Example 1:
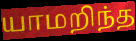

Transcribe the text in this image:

யாமறிந்த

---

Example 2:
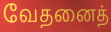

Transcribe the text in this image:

வேதனைத்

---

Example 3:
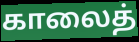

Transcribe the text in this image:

காலைத்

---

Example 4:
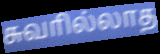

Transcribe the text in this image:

சுவரில்லாத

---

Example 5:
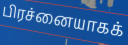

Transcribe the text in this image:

பிரச்னையாகக்